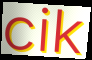
cik